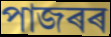
পাজৰৰ